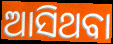
ଆସିଥବା